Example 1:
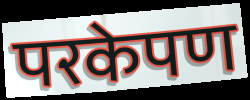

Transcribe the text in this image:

परकेपण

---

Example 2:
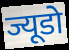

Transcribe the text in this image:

ज्यूडो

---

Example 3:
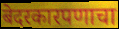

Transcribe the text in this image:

बेदरकारपणाचा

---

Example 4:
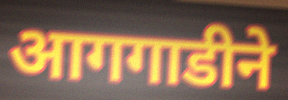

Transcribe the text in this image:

आगगाडीने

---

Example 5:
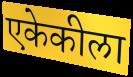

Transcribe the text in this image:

एकेकीला